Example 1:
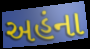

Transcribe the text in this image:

અહંના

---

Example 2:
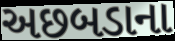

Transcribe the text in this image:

અછબડાના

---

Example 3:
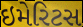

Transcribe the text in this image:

ઇમેરિટસ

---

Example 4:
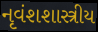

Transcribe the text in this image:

નૃવંશશાસ્ત્રીય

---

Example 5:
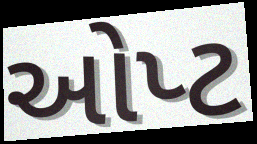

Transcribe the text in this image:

ઓપ્ટ